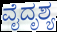
ವೈದೃಶ್ಯ